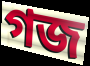
গজ